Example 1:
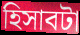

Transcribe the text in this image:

হিসাবটা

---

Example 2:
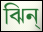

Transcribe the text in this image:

ঝিন্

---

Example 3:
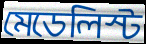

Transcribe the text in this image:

মেডেলিস্ট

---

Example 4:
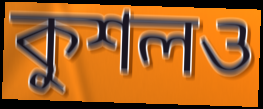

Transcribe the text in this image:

কুশলও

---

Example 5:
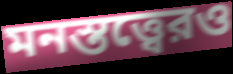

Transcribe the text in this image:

মনস্তত্ত্বেরও